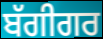
ਬੱਗੀਗਰ